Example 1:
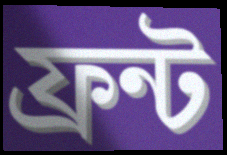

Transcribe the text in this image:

ফ্রন্ট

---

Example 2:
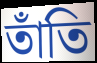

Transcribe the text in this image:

তাঁতি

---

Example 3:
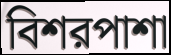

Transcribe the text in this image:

বিশরপাশা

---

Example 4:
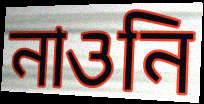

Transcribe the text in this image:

নাওনি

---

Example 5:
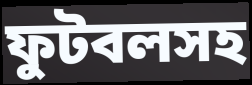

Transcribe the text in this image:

ফুটবলসহ